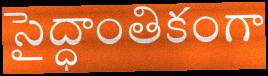
సైద్ధాంతికంగా